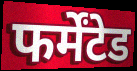
फर्मेंटेड